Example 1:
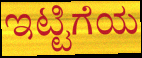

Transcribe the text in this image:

ಇಟ್ಟಿಗೆಯ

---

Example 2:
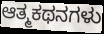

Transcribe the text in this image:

ಆತ್ಮಕಥನಗಳು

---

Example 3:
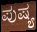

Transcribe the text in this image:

ಪುಷ್ಯ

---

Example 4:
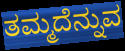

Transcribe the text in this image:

ತಮ್ಮದೆನ್ನುವ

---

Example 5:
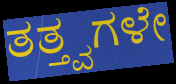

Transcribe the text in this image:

ತತ್ತ್ವಗಳೇ